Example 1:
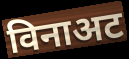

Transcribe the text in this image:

विनाअट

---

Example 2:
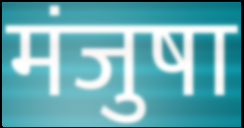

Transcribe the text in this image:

मंजुषा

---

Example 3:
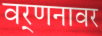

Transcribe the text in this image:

वर्णनावर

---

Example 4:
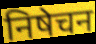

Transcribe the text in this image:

निषेचन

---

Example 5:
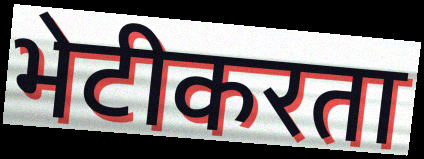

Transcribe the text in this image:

भेटीकरता